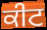
ਕੀਟ